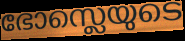
ഭോസ്ലെയുടെ